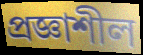
প্রজ্ঞাশীল